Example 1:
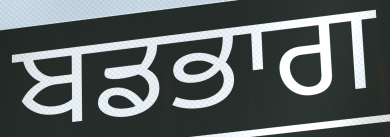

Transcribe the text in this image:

ਬਡਭਾਗ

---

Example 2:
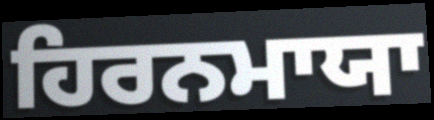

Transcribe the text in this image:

ਹਿਰਨਮਾਯਾ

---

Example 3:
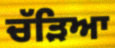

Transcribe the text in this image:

ਚੱੜਿਆ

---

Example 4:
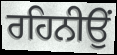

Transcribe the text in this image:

ਰਹਿਨੀਉਂ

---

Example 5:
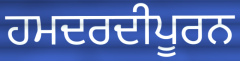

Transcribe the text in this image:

ਹਮਦਰਦੀਪੂਰਨ